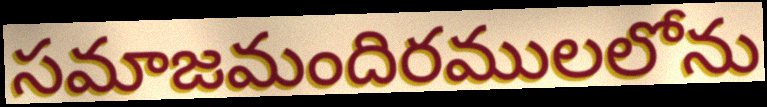
సమాజమందిరములలోను